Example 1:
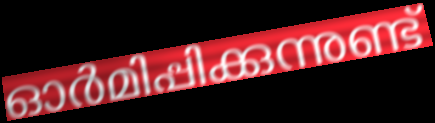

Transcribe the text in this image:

ഓർമിപ്പിക്കുന്നുണ്ട്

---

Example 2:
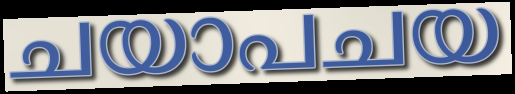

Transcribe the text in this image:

ചയാപചയ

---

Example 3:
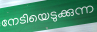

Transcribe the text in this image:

നേടിയെടുക്കുന്ന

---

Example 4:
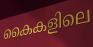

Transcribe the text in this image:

കൈകളിലെ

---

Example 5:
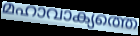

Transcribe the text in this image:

മഹാവാക്യത്തെ